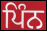
ਪਿੰਨ